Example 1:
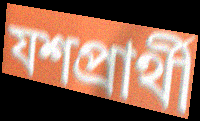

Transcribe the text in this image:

যশপ্রার্থী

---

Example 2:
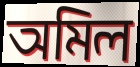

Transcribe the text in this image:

অমিল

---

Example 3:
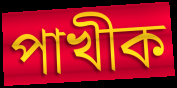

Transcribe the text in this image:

পাখীক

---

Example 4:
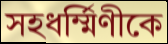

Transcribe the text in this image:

সহধর্ম্মিণীকে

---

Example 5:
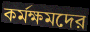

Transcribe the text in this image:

কর্মক্ষমদের